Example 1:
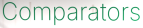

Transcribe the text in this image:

Comparators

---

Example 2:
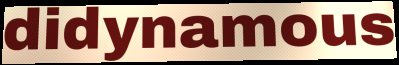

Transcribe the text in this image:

didynamous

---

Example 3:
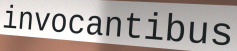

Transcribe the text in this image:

invocantibus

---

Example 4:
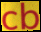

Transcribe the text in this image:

cb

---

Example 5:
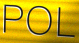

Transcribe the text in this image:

POL